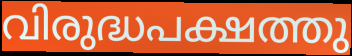
വിരുദ്ധപക്ഷത്തു